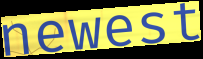
newest